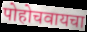
पोहोचवायचा